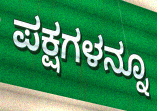
ಪಕ್ಷಗಳನ್ನೂ